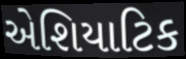
એશિયાટિક